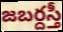
జబర్దస్తీ